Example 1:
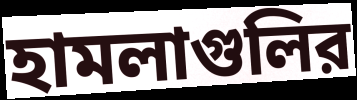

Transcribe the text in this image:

হামলাগুলির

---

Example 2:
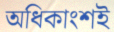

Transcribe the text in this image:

অধিকাংশই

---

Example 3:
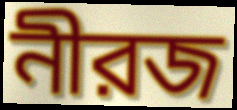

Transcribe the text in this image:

নীরজ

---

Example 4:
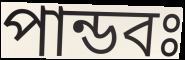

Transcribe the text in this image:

পান্ডবঃ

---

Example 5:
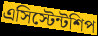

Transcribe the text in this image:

এসিস্টেন্টশিপ